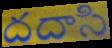
దదాసి